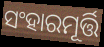
ସଂହାରମୂର୍ତ୍ତି